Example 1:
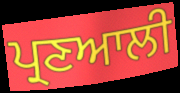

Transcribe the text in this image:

ਪ੍ਰਣਆਲੀ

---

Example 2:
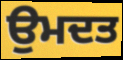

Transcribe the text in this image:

ਉਮਦਤ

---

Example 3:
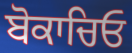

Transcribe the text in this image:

ਬੋਕਾਚਿਓ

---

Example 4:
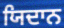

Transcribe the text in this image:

ਯਿਦਾਨ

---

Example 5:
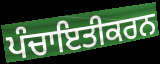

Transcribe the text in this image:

ਪੰਚਾਇਤੀਕਰਨ